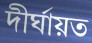
দীর্ঘায়ত